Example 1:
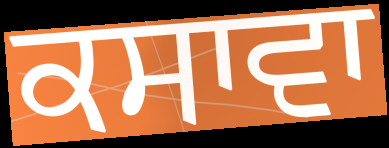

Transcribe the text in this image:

ਕਸਾਵਾ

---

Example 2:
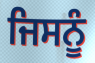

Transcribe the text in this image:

ਜਿਸਨੂੰ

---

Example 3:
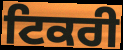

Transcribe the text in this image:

ਟਿਕਰੀ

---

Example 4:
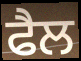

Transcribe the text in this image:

ਫੈਲ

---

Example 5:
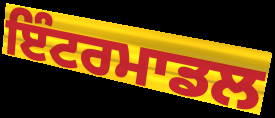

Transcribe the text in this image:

ਇੰਟਰਮਾਡਲ